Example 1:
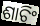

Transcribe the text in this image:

ଶାଚିଂ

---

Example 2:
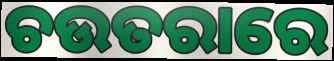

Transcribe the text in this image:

ଚଉତରାରେ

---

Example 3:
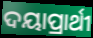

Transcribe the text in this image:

ଦୟାପ୍ରାର୍ଥୀ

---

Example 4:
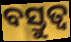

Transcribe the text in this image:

ବସ୍ତୁତ୍ବ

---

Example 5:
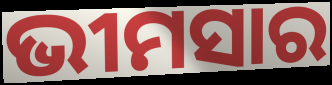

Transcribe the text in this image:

ଭୀମସାର